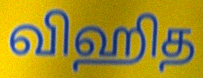
விஹித